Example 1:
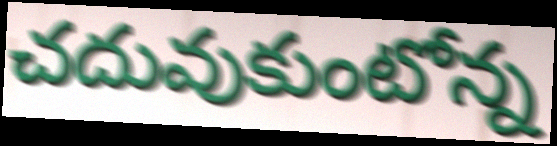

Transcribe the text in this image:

చదువుకుంటోన్న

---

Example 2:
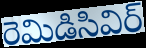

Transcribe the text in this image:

రెమిడిసివిర్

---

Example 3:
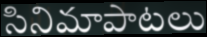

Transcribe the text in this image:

సినిమాపాటలు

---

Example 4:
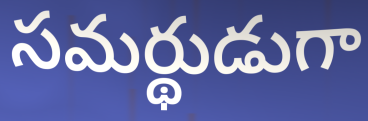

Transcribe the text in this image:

సమర్థుడుగా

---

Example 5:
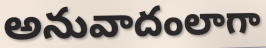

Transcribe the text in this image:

అనువాదంలాగా